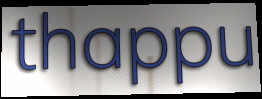
thappu